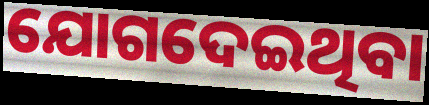
ଯୋଗଦେଇଥିବା